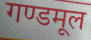
गण्डमूल